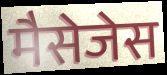
मैसेजेस